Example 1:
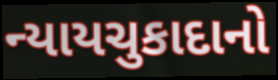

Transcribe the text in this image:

ન્યાયચુકાદાનો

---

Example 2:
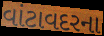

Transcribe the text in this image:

વાંટાવદરના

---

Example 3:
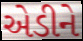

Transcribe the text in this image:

એડીને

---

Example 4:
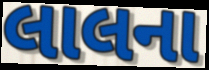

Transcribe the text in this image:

લાલના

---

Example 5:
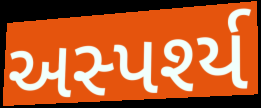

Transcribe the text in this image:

અસ્પર્શ્ય